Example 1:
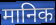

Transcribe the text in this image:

मानिक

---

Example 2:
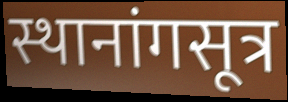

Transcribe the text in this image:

स्थानांगसूत्र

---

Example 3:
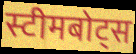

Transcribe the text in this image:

स्टीमबोट्स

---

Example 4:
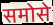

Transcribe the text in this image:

समोसे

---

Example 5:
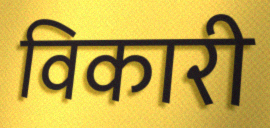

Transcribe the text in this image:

विकारी